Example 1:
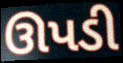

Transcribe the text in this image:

ઊપડી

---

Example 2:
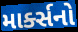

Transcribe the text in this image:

માર્ક્સનો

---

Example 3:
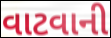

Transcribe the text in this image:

વાટવાની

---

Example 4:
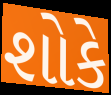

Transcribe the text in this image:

શોકે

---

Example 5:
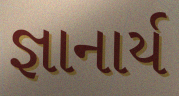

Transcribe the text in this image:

જ્ઞાનાર્ય